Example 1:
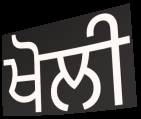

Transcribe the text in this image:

ਖੋਲੀ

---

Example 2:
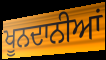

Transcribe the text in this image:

ਖੂਨਦਾਨੀਆਂ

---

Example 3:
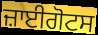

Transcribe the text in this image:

ਜ਼ਾਈਗੋਟਸ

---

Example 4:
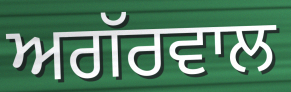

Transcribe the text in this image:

ਅਗੱਰਵਾਲ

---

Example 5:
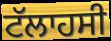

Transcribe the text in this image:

ਟੱਲਾਹਸੀ